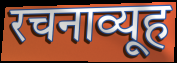
रचनाव्यूह